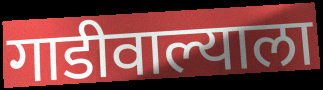
गाडीवाल्याला